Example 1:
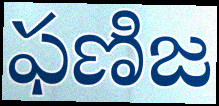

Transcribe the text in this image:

ఫణిజ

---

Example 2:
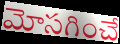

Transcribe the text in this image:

మోసగించే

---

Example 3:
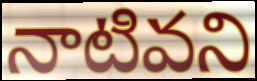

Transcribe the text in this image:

నాటివని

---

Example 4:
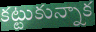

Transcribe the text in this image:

కట్టుకున్నాక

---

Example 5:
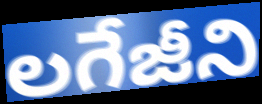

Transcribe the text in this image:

లగేజీని